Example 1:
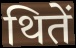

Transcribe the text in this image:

थितें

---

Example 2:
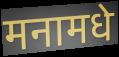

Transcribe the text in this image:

मनामधे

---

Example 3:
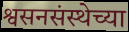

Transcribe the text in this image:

श्वसनसंस्थेच्या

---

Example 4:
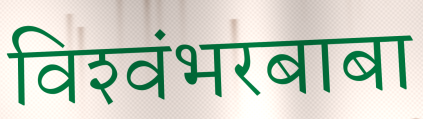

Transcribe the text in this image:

विश्वंभरबाबा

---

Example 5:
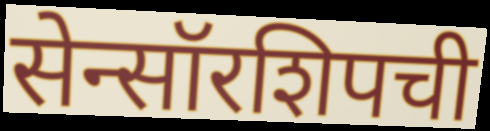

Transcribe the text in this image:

सेन्सॉरशिपची